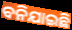
ବନିଯାଇଛି